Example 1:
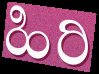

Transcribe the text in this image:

ಹಿರಿ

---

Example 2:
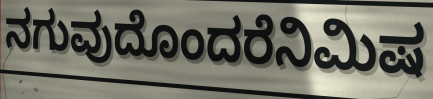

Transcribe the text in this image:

ನಗುವುದೊಂದರೆನಿಮಿಷ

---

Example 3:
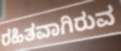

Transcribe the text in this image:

ರಹಿತವಾಗಿರುವ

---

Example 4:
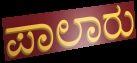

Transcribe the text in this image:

ಪಾಲಾರು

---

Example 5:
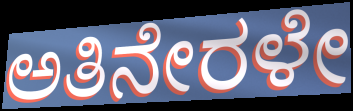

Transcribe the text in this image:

ಅತಿನೇರಳೇ